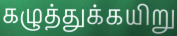
கழுத்துக்கயிறு